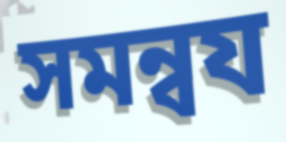
সমন্বয